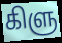
கிளு